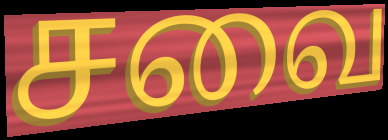
சவை